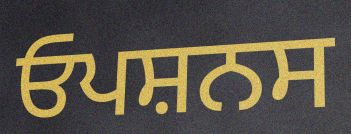
ਓਪਸ਼ਨਸ